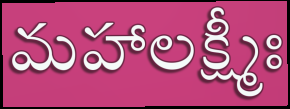
మహాలక్ష్మీః